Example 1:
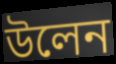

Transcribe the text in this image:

উলেন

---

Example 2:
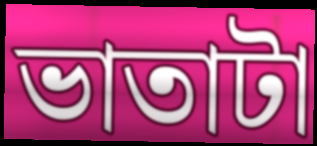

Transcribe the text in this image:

ভাতাটা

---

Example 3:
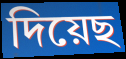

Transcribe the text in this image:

দিয়েছ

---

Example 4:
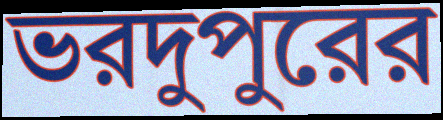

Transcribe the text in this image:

ভরদুপুরের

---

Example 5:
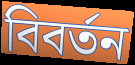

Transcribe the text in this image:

বিবর্তন